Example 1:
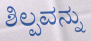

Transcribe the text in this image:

ಶಿಲ್ಪವನ್ನು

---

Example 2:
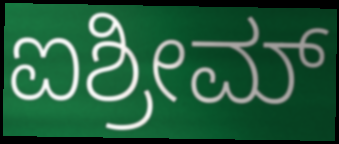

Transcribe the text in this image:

ಐಶ್ರೀಮ್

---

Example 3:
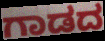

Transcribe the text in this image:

ಗಾಡದ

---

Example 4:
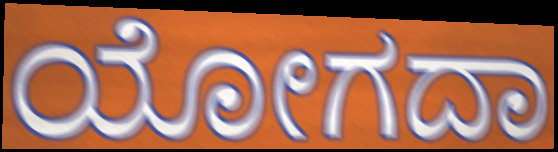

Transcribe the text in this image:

ಯೋಗದಾ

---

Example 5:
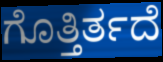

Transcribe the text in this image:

ಗೊತ್ತಿರ್ತದೆ